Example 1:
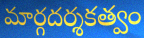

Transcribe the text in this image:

మార్గదర్శకత్వం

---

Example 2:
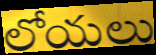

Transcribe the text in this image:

లోయలు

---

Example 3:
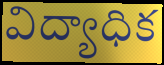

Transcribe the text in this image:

విద్యాధిక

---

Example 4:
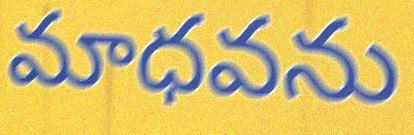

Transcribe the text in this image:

మాధవను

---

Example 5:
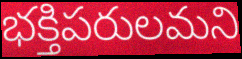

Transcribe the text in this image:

భక్తిపరులమని